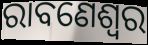
ରାବଣେଶ୍ୱର